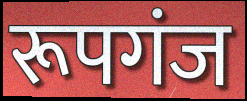
रूपगंज